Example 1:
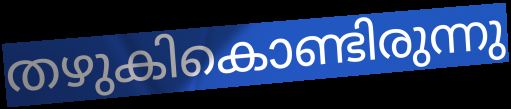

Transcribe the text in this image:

തഴുകികൊണ്ടിരുന്നു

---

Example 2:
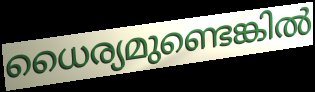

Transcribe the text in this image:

ധൈര്യമുണ്ടെങ്കിൽ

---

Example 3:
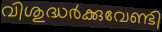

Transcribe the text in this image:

വിശുദ്ധർക്കുവേണ്ടി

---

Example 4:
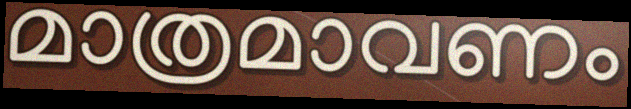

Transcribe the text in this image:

മാത്രമാവണം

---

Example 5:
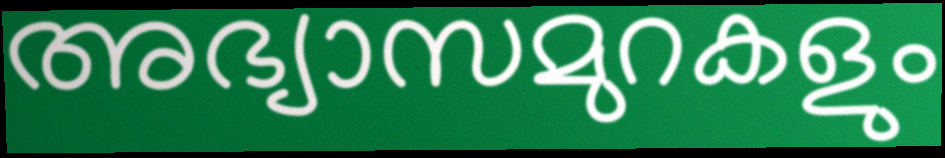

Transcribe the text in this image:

അഭ്യാസമുറകളും